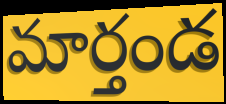
మార్తండ